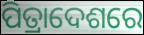
ପିତ୍ରାଦେଶରେ